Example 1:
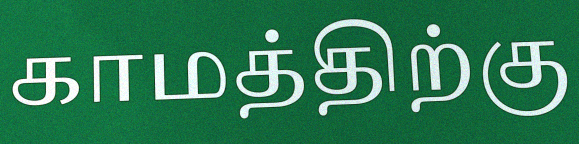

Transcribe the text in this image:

காமத்திற்கு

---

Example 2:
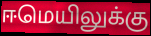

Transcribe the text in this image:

ஈமெயிலுக்கு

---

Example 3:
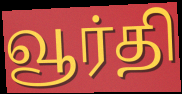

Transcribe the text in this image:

வூர்தி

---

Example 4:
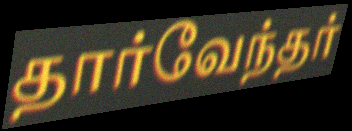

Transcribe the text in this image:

தார்வேந்தர்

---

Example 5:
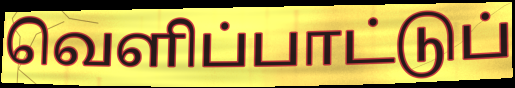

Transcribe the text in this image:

வெளிப்பாட்டுப்